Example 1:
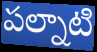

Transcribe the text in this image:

పల్నాటి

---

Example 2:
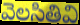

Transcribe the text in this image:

వెలసితివి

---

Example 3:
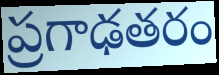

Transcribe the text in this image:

ప్రగాఢతరం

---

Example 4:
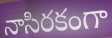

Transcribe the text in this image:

నాసిరకంగా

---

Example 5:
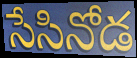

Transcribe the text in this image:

సేసినోడ